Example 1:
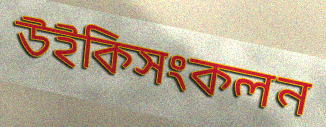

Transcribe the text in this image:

উইকিসংকলন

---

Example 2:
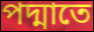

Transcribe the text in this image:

পদ্মাতে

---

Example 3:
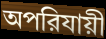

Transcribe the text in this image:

অপরিযায়ী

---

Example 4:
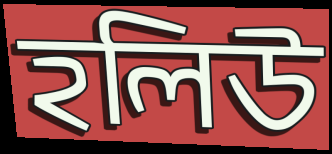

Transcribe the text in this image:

হলিউ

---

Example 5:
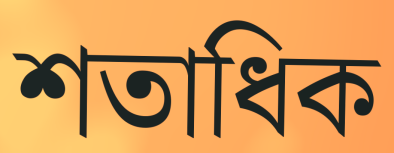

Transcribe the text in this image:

শতাধিক